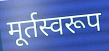
मूर्तस्वरूप